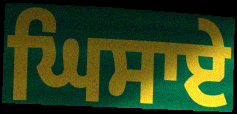
ਘਿਸਾਏ